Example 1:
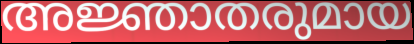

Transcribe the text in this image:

അജ്ഞാതരുമായ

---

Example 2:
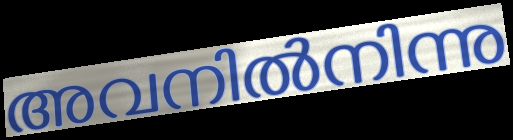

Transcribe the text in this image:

അവനിൽനിന്നു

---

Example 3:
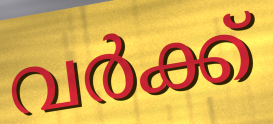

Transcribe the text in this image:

വർക്ക്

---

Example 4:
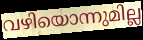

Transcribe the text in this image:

വഴിയൊന്നുമില്ല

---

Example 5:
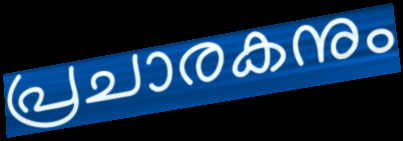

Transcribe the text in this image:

പ്രചാരകനും